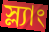
স্ল্যাং